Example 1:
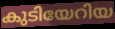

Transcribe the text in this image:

കുടിയേറിയ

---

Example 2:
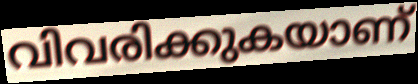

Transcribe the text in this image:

വിവരിക്കുകയാണ്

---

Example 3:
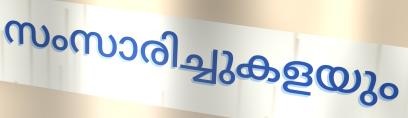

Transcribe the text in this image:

സംസാരിച്ചുകളയും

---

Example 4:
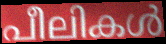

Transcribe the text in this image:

പീലികൾ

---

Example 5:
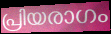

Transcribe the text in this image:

പ്രിയരാഗം